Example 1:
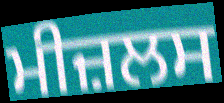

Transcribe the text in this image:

ਮੀਜ਼ਲਸ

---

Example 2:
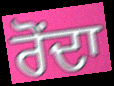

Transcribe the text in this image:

ਰੋਂਦਾ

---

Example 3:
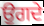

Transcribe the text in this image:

ਉਗਦੇ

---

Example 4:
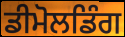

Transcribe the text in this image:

ਡੀਮੋਲਡਿੰਗ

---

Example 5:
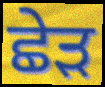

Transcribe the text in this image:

ਛੇੜ